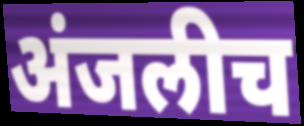
अंजलीच